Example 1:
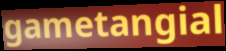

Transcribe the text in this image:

gametangial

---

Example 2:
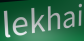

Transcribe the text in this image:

lekhai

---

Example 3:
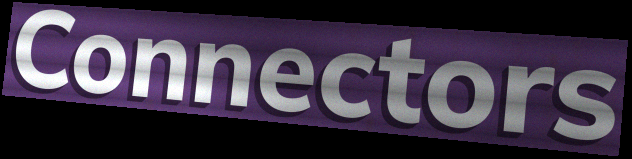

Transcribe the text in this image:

Connectors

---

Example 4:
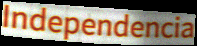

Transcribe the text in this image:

Independencia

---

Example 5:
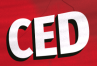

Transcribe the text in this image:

CED